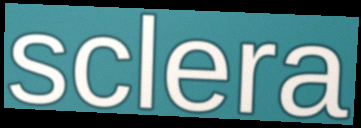
sclera